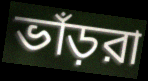
ভাঁড়রা